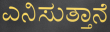
ಎನಿಸುತ್ತಾನೆ